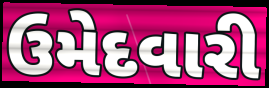
ઉમેદવારી